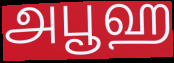
அபூஹ